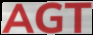
AGT